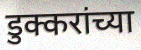
डुक्करांच्या